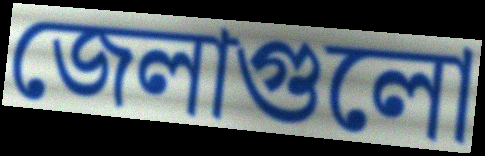
জেলাগুলো